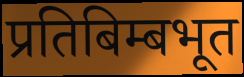
प्रतिबिम्बभूत